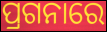
ପ୍ରଗନାରେ